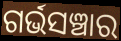
ଗର୍ଭସଞ୍ଚାର